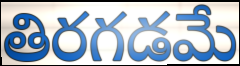
తిరగడమే